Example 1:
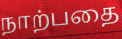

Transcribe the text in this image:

நாற்பதை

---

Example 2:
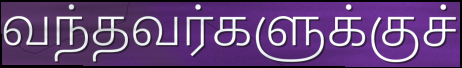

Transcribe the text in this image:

வந்தவர்களுக்குச்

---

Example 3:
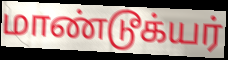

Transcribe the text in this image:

மாண்டூக்யர்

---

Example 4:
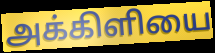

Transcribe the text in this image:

அக்கிளியை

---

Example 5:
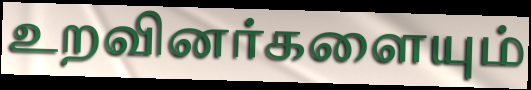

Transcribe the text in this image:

உறவினர்களையும்